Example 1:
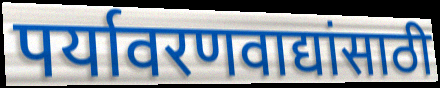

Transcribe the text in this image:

पर्यावरणवाद्यांसाठी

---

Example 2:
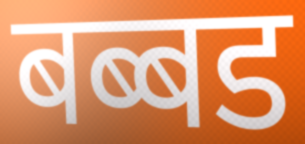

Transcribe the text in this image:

बब्बड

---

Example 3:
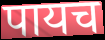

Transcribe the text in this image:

पायच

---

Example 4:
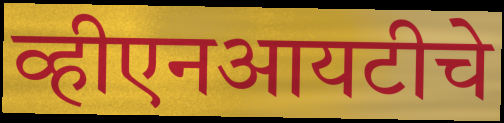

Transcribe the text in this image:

व्हीएनआयटीचे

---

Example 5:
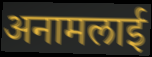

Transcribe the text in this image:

अनामलाई